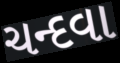
ચન્દવા